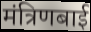
मंत्रिणबाई